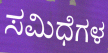
ಸಮಿಧೆಗಳ